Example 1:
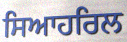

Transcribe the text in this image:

ਸਿਆਹਰਿਲ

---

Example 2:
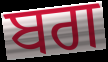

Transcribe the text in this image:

ਬਗ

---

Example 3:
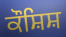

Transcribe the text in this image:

ਕੌਸ਼ਿਸ਼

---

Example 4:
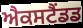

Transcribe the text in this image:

ਐਕਸਟੈਂਡਡ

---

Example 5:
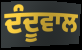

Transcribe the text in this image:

ਦੰਦੂਵਾਲ